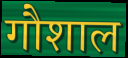
गौशाल